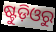
ଷ୍ଟୁଡ଼ିଓରୁ